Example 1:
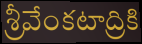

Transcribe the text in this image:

శ్రీవేంకటాద్రికి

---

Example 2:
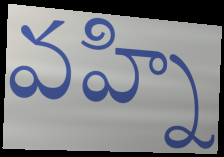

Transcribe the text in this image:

వహ్ని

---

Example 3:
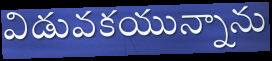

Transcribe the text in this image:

విడువకయున్నాను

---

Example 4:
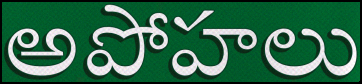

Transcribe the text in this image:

అపోహలు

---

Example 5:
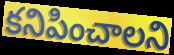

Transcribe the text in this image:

కనిపించాలని